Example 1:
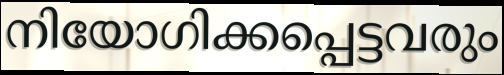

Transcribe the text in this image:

നിയോഗിക്കപ്പെട്ടവരും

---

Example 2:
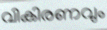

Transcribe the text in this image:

വികിരണവും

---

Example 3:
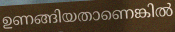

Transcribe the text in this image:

ഉണങ്ങിയതാണെങ്കിൽ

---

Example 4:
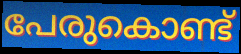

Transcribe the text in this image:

പേരുകൊണ്ട്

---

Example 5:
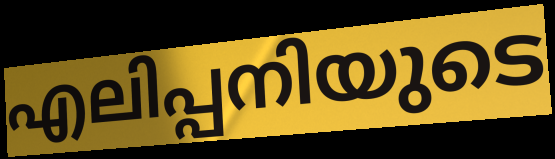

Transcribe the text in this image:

എലിപ്പനിയുടെ